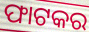
ଫାଟକର